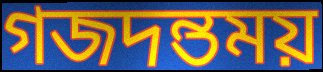
গজদন্তময়